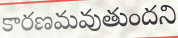
కారణమవుతుందని